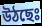
উঠছেঃ